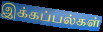
இக்கப்பல்கள்